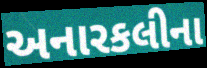
અનારકલીના